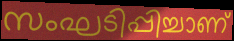
സംഘടിപ്പിച്ചാണ്